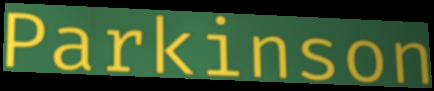
Parkinson